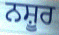
ਨਸ਼ੂਰ